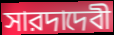
সারদাদেবী